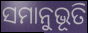
ସମାନୁଭୂତି